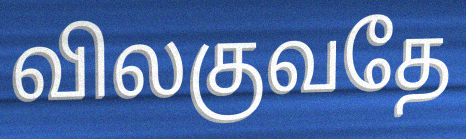
விலகுவதே